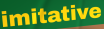
imitative